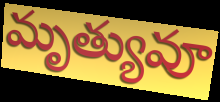
మృత్యువూ